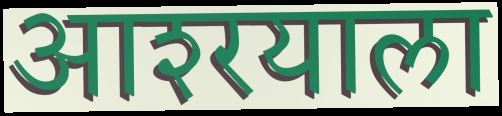
आश्रयाला